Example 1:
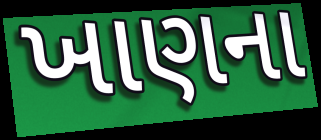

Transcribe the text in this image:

ખાણના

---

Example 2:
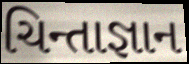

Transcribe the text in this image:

ચિન્તાજ્ઞાન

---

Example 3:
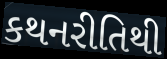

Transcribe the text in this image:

કથનરીતિથી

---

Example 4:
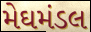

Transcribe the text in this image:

મેઘમંડલ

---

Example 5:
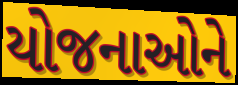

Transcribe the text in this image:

યોજનાઓને